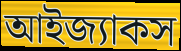
আইজ্যাকস